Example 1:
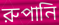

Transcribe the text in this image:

রুপানি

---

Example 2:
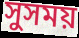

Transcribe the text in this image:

সুসময়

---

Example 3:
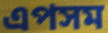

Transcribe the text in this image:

এপসম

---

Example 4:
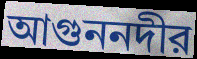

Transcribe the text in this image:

আগুননদীর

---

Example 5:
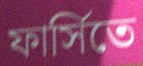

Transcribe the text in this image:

ফার্সিতে